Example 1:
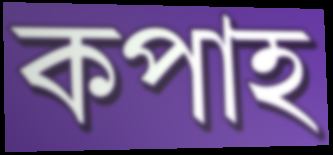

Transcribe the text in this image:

কপাহ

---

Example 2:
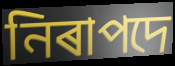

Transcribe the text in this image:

নিৰাপদে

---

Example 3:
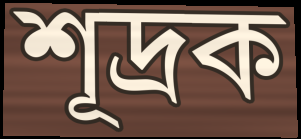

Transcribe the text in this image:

শূদ্ৰক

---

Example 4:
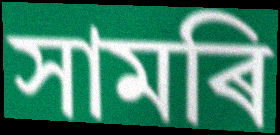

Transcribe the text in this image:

সামৰি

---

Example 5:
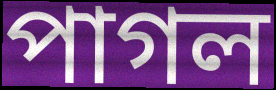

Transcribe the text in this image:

পাগল